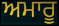
ਅਮਾਰੂ